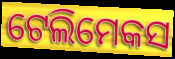
ଟେଲିମେକସ